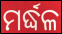
ମର୍ଦ୍ଧଳ